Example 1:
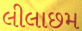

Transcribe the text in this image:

લીલાછમ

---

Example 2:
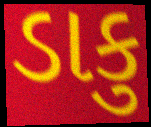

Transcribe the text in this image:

ડાકુ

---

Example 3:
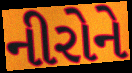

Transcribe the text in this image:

નીરોને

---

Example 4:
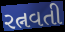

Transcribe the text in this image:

રત્નવતી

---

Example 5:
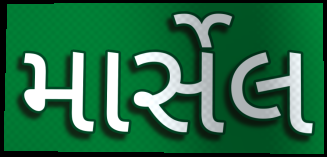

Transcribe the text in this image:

માર્સેલ